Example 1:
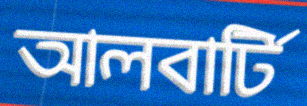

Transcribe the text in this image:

আলবার্টি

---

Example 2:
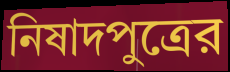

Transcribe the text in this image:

নিষাদপুত্রের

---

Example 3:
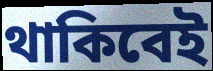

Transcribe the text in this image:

থাকিবেই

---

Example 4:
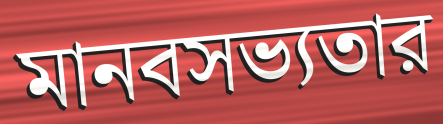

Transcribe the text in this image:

মানবসভ্যতার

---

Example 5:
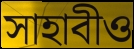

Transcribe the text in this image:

সাহাবীও